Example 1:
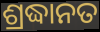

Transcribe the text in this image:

ଶ୍ରଦ୍ଧାନତ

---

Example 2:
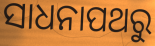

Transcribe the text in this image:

ସାଧନାପଥରୁ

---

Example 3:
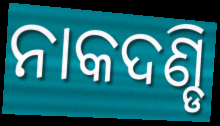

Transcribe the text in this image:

ନାକଦଣ୍ଡି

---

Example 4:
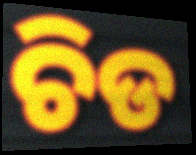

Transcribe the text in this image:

ଚିଡ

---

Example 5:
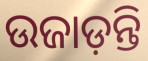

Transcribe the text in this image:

ଉଜାଡ଼ନ୍ତି